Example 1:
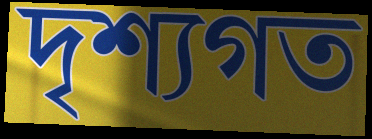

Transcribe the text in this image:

দৃশ্যগত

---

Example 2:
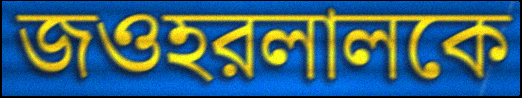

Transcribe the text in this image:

জওহরলালকে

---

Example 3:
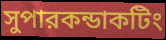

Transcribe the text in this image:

সুপারকন্ডাকটিং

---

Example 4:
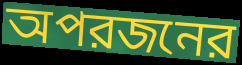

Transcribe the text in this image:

অপরজনের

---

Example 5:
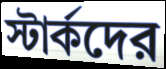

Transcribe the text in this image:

স্টার্কদের